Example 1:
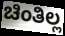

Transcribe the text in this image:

ಚಿಂತಿಲ್ಲ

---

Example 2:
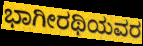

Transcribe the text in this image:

ಭಾಗೀರಥಿಯವರ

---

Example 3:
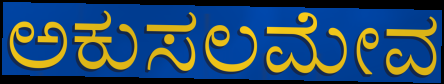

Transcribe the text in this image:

ಅಕುಸಲಮೇವ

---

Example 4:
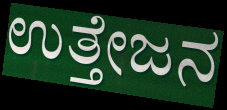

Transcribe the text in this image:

ಉತ್ತೇಜನ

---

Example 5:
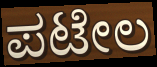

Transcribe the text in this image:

ಪಟೇಲ